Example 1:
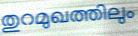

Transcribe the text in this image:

തുറമുഖത്തിലും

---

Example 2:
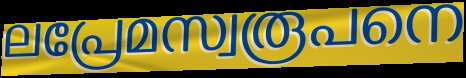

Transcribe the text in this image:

ലപ്രേമസ്വരൂപനെ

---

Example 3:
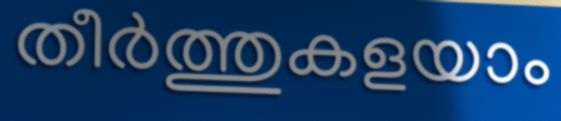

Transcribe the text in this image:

തീർത്തുകളയാം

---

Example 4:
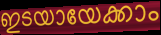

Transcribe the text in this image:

ഇടയായേക്കാം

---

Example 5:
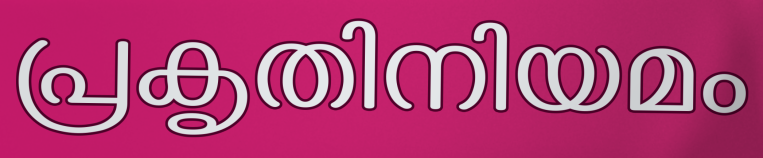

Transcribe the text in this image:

പ്രകൃതിനിയമം